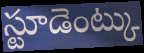
స్టూడెంట్కు